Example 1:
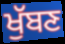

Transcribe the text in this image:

ਖੁੱਬਣ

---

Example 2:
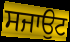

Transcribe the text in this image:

ਸਜਾਉਟ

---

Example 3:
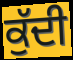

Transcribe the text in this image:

ਕੁੱਦੀ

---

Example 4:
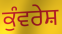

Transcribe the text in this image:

ਕੁੰਵਰੇਸ਼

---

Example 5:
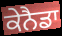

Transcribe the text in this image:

ਕੇਨੈਡਾ